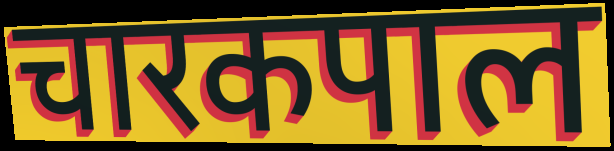
चारकपाल